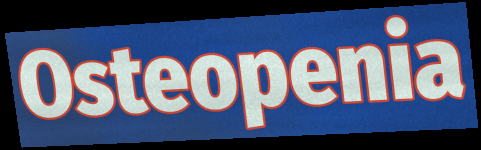
Osteopenia